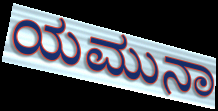
ಯಮುನಾ